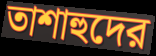
তাশাহুদের